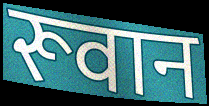
रूवान